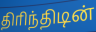
திரிந்திடின்